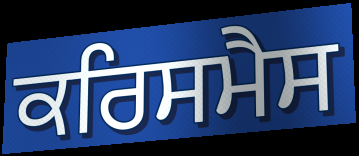
ਕਰਿਸਮੈਸ